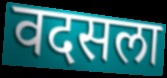
वदसला